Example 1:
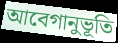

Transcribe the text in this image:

আবেগানুভূতি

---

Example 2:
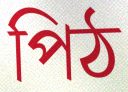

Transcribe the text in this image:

পিঠ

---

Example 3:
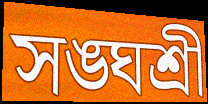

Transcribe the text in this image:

সঙ্ঘশ্রী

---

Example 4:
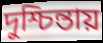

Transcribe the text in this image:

দুশ্চিন্তায়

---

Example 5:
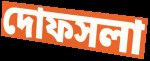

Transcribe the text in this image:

দোফসলা